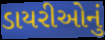
ડાયરીઓનું